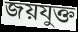
জয়যুক্ত